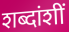
शब्दांशीं